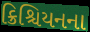
ક્રિશ્ચિયનના